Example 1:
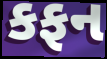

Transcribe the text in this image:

કફન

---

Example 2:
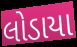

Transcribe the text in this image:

લોડાયા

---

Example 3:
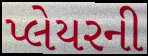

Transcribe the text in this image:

પ્લેયરની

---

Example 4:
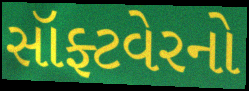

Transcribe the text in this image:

સૉફ્ટવેરનો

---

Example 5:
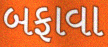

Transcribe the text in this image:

બફાવા